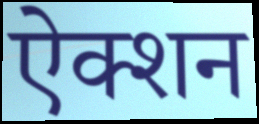
ऐक्शन